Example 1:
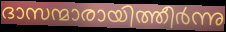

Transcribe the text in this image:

ദാസന്മാരായിത്തീർന്നു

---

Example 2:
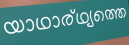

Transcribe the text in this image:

യാഥാര്ഥ്യത്തെ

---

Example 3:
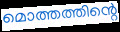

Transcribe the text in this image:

മൊത്തത്തിന്റെ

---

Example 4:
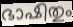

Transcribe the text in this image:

ഭാഷിതും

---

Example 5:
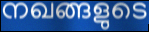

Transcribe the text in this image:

നഖങ്ങളുടെ